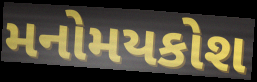
મનોમયકોશ